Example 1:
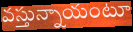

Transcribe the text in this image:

వస్తున్నాయంటూ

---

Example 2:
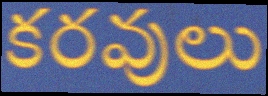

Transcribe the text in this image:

కరవులు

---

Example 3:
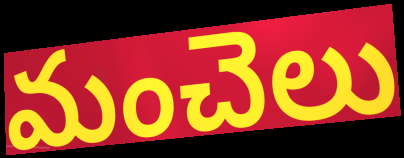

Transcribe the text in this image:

మంచెలు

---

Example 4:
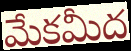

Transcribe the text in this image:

మేకమీద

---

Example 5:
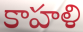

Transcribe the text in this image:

కాహళి